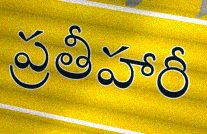
ప్రతీహారీ